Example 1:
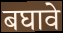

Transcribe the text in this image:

बघावे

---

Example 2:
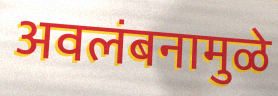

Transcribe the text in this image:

अवलंबनामुळे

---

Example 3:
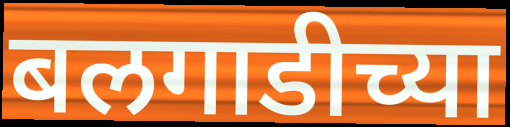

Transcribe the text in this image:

बलगाडीच्या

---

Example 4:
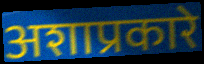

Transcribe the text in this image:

अशाप्रकारे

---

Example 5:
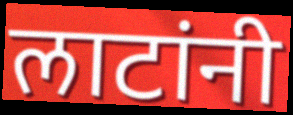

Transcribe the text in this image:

लाटांनी